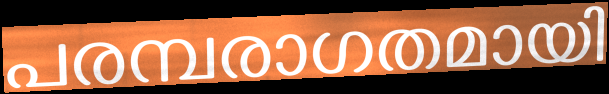
പരമ്പരാഗതമായി